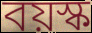
বয়স্ক